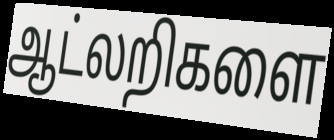
ஆட்லறிகளை